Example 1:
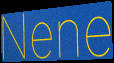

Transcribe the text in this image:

Nene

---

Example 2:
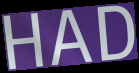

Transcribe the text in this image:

HAD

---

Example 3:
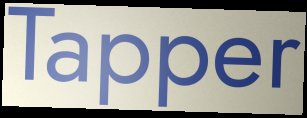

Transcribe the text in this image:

Tapper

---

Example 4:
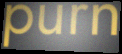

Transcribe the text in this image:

purn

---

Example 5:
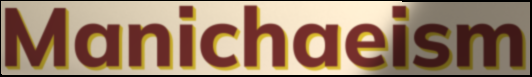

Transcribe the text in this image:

Manichaeism